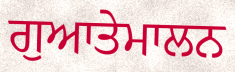
ਗੁਆਤੇਮਾਲਨ